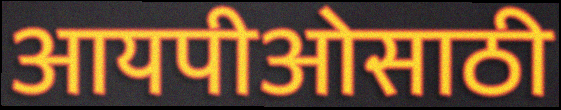
आयपीओसाठी